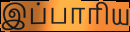
இப்பாரிய